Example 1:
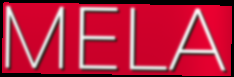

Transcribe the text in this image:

MELA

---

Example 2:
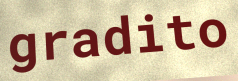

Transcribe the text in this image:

gradito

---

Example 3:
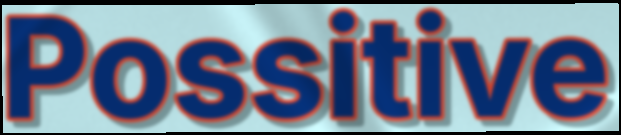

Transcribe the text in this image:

Possitive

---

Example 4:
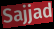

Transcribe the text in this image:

Sajjad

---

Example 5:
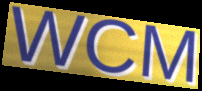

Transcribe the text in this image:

WCM